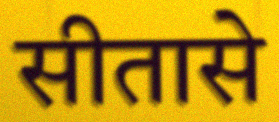
सीतासे